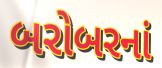
બરોબરનાં